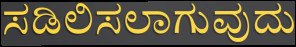
ಸಡಿಲಿಸಲಾಗುವುದು